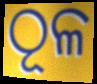
ଠୂଳ